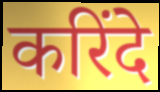
करिंदे